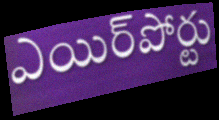
ఎయిర్‌పోర్టు